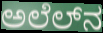
ಅಲೆಲ್‌ನ